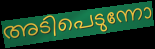
അടിപെടുന്നോ